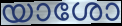
യാശോ